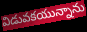
విడువకయున్నాను